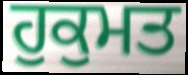
ਹੁਕੁਮਤ